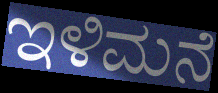
ಇಳಿಮನೆ